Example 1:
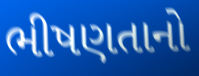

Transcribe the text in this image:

ભીષણતાનો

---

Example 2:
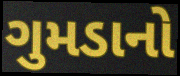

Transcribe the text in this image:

ગુમડાનો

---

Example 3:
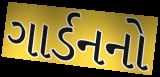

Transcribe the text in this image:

ગાર્ડનનો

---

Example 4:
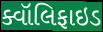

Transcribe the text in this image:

ક્વૉલિફાઇડ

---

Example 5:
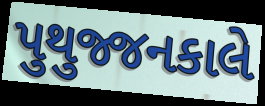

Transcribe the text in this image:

પુથુજ્જનકાલે